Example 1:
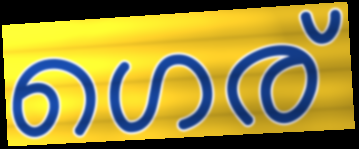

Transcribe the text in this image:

ഗെര്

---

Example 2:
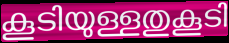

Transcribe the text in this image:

കൂടിയുള്ളതുകൂടി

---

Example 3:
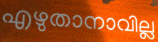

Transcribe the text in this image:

എഴുതാനാവില്ല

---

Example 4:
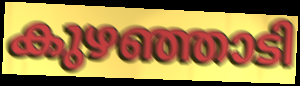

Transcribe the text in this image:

കുഴഞ്ഞാടി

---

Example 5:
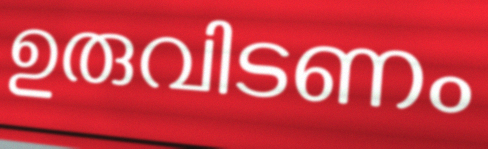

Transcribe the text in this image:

ഉരുവിടണം